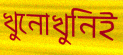
খুনোখুনিই